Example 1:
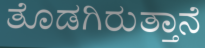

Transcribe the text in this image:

ತೊಡಗಿರುತ್ತಾನೆ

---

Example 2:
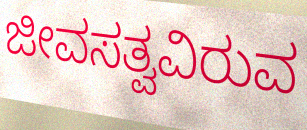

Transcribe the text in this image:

ಜೀವಸತ್ವವಿರುವ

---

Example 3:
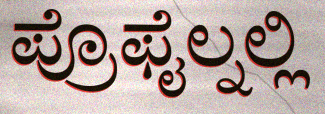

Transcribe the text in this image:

ಪ್ರೊಫೈಲ್ನಲ್ಲಿ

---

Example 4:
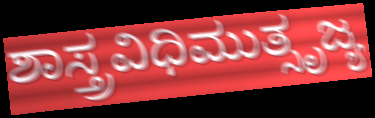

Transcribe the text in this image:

ಶಾಸ್ತ್ರವಿಧಿಮುತ್ಸೃಜ್ಯ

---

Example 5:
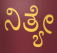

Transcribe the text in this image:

ನಿತ್ಯೇ